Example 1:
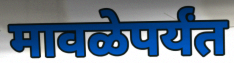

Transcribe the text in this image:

मावळेपर्यंत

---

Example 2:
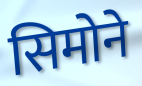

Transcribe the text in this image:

सिमोने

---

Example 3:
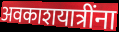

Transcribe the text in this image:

अवकाशयात्रींना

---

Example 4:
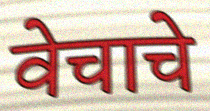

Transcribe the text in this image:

वेचाचे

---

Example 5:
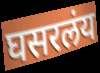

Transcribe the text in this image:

घसरलंय